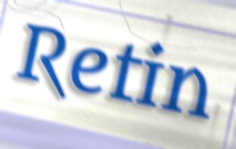
Retin